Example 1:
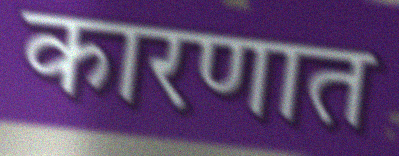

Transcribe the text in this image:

कारणात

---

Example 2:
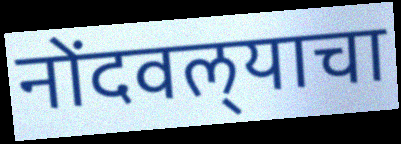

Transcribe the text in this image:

नोंदवल्याचा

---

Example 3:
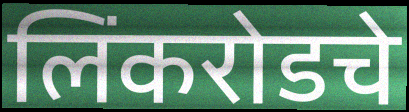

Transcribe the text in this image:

लिंकरोडचे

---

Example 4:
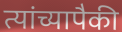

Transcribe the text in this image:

त्यांच्यापैकी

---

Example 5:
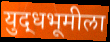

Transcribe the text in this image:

युद्धभूमीला